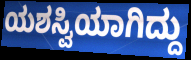
ಯಶಸ್ವಿಯಾಗಿದ್ದು